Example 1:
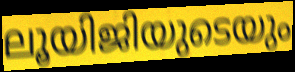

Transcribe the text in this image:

ലൂയിജിയുടെയും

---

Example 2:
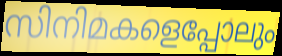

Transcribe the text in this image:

സിനിമകളെപ്പോലും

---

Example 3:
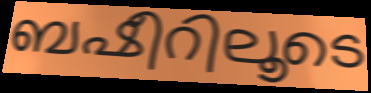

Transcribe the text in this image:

ബഷീറിലൂടെ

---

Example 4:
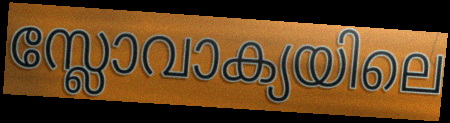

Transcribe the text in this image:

സ്ലോവാക്യയിലെ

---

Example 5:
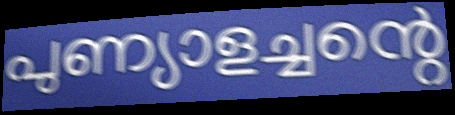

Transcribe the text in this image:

പുണ്യാളച്ചന്റെ